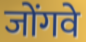
जोंगवे